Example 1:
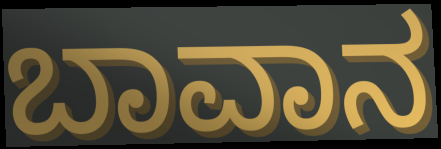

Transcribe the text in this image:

ಬಾವಾನ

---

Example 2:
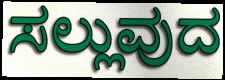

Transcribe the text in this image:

ಸಲ್ಲುವುದ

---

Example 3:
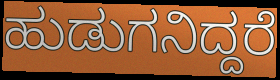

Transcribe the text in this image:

ಹುಡುಗನಿದ್ದರೆ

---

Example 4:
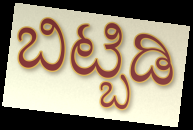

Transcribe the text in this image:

ಬಿಟ್ಬಿಡಿ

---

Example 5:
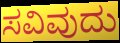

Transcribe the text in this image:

ಸವಿವುದು